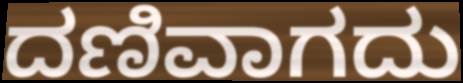
ದಣಿವಾಗದು